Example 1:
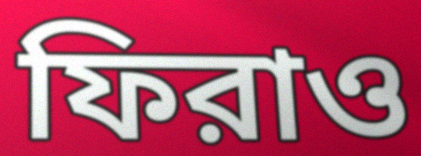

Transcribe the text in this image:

ফিরাও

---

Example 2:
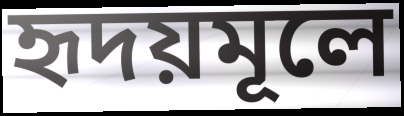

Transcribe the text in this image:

হৃদয়মূলে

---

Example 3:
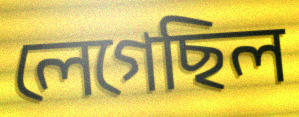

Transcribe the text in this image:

লেগেছিল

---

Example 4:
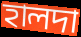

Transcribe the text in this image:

হালদা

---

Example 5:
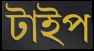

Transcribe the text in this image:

টাইপ